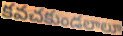
కవచకుండలాలూ